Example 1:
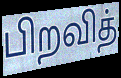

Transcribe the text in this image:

பிறவித்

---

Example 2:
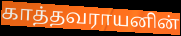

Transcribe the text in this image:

காத்தவராயனின்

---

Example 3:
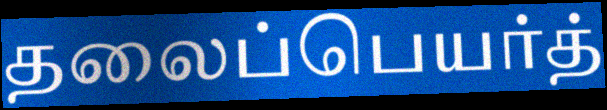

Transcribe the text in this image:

தலைப்பெயர்த்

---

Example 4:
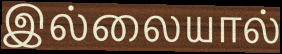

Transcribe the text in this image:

இல்லையால்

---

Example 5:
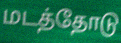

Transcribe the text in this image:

மடத்தோடு